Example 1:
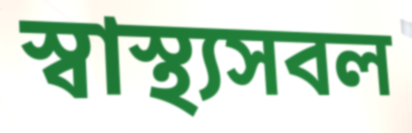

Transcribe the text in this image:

স্বাস্থ্যসবল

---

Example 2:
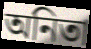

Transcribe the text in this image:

অনিতা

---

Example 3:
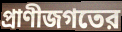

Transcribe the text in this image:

প্রাণীজগতের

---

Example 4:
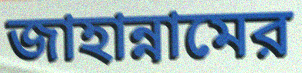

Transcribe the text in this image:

জাহান্নামের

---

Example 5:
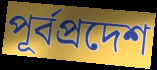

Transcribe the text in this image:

পূর্বপ্রদেশ